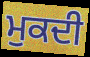
ਮੁਕਦੀ